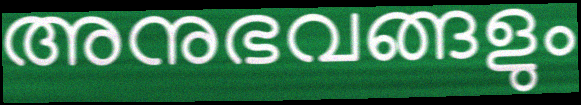
അനുഭവങ്ങളും